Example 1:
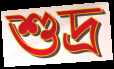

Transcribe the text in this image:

শুদ্র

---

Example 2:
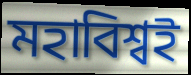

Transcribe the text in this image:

মহাবিশ্বই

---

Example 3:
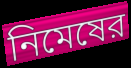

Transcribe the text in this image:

নিমেষের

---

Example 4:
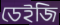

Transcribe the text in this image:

ডেইজি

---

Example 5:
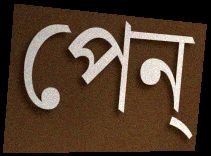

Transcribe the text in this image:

পেন্